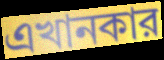
এখানকার